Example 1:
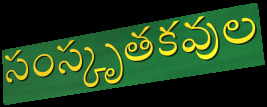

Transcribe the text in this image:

సంస్కృతకవుల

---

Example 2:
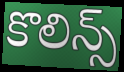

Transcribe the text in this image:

కొలిన్స్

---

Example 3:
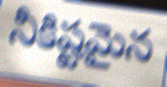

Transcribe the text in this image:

నీకిష్టమైన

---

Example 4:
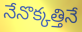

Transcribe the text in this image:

నేనొక్కత్తినే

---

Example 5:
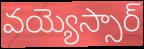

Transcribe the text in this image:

వయ్యెస్సార్